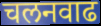
चलनवाढ